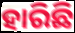
ହାରିଛି